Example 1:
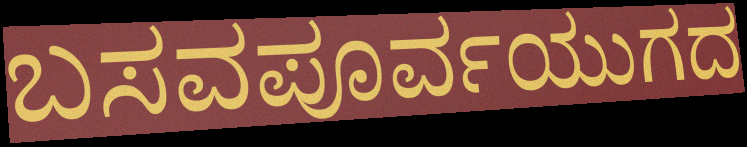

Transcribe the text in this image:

ಬಸವಪೂರ್ವಯುಗದ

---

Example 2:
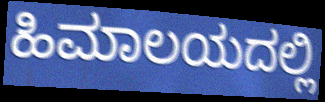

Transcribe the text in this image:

ಹಿಮಾಲಯದಲ್ಲಿ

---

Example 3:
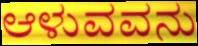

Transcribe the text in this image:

ಆಳುವವನು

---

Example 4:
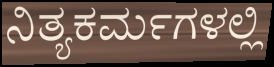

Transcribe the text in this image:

ನಿತ್ಯಕರ್ಮಗಳಲ್ಲಿ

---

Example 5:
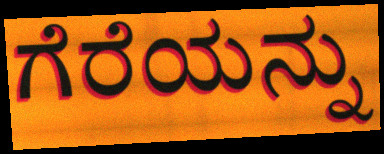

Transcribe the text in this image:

ಗೆರೆಯನ್ನು